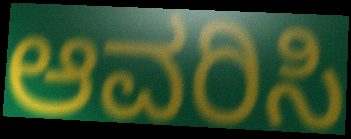
ಆವರಿಸಿ